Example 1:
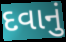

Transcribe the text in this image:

દવાનું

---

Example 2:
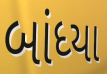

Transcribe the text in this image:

બાંધ્યા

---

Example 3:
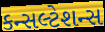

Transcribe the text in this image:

કન્સલ્ટેશન્સ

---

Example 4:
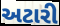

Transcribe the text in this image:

અટારી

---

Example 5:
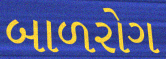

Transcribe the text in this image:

બાળરોગ